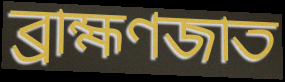
ব্রাহ্মণজাত